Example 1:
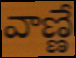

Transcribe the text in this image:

వాణ్ణే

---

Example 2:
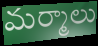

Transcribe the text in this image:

మర్మాలు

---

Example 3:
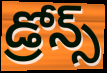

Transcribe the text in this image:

డ్రోన్స్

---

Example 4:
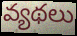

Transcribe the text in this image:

వ్యథలు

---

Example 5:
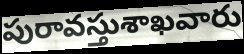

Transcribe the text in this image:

పురావస్తుశాఖవారు